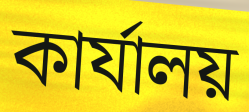
কাৰ্যালয়